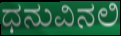
ಧನುವಿನಲಿ